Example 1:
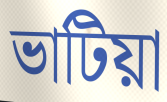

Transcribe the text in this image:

ভাটিয়া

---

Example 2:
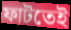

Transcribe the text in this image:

ফাটতেই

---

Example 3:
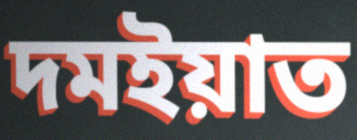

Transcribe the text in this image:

দমইয়াত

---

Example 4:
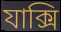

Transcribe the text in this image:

যাক্সি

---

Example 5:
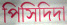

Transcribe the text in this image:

পিসিদিদা